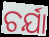
ଚର୍ଯା